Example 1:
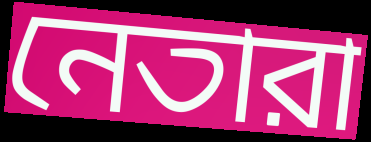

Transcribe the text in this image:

নেতারা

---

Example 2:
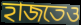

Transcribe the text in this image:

হাজতেও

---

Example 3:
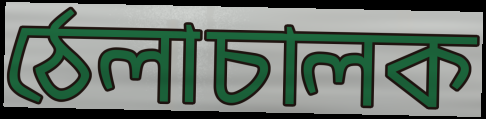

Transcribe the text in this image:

ঠেলাচালক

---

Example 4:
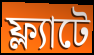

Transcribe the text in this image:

ফ্ল্যাটে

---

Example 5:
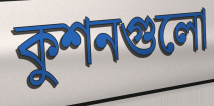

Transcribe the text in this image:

কুশনগুলো